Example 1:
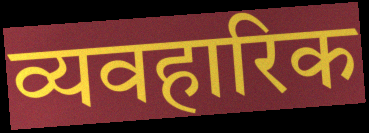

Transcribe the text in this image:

व्यवहारिक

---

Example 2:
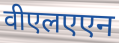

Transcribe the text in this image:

वीएलएएन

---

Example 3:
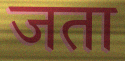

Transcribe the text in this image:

जता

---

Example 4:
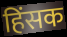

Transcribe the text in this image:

हिंसक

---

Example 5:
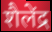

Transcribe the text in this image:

शैलेंद्र